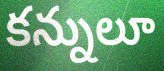
కన్నులూ